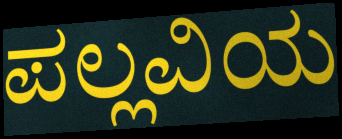
ಪಲ್ಲವಿಯ